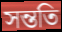
সন্ততি